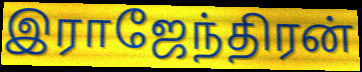
இராஜேந்திரன்